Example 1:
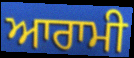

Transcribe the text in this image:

ਆਰਾਮੀ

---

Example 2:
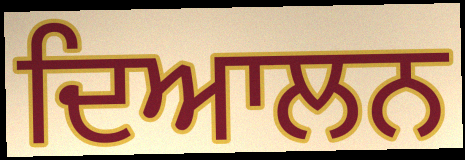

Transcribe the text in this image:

ਦਿਆਲਨ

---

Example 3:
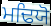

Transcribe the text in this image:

ਮਢਿਯੋ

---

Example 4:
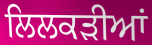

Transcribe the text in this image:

ਲਿਲਕੜੀਆਂ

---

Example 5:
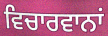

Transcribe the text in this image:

ਵਿਚਾਰਵਾਨਾਂ